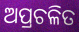
ଅପ୍ରଚଳିତ